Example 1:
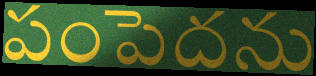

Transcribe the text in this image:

పంపెదను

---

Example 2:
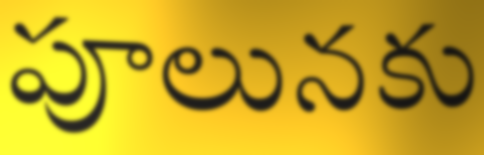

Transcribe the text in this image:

పూలునకు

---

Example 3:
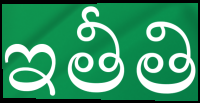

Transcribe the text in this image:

ఇతీతి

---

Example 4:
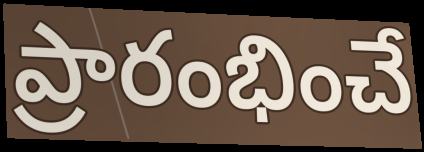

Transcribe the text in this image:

ప్రారంభించే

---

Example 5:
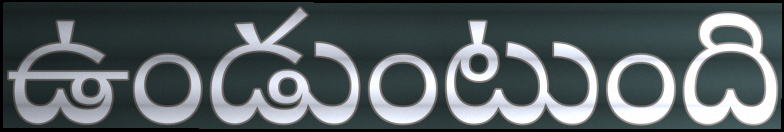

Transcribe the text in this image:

ఉండుంటుంది